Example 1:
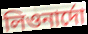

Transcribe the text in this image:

লিওনার্দো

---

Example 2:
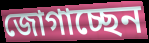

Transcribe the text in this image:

জোগাচ্ছেন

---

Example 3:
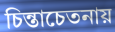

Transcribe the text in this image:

চিন্তাচেতনায়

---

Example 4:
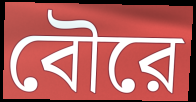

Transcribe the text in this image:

বৌরে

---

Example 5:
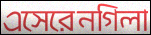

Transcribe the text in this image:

এসেরেনগিলা